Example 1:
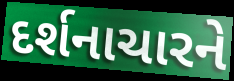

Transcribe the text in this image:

દર્શનાચારને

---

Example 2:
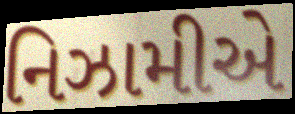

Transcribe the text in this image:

નિઝામીએ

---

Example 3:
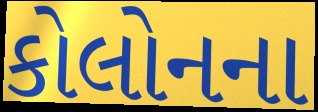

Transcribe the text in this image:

કોલોનના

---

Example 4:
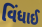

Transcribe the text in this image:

વિંધાઈ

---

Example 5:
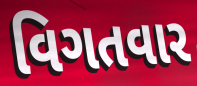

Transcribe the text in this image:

વિગતવાર